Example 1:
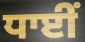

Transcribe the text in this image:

ਧਾਈਂ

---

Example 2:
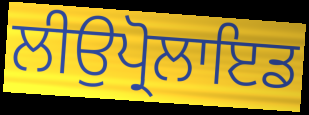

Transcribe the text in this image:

ਲੀਉਪ੍ਰੋਲਾਇਡ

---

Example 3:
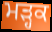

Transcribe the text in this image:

ਮੜ੍ਹਕ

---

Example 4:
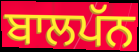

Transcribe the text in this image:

ਬਾਲਪੱਨ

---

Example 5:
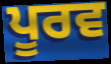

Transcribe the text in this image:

ਪੂਰਵ